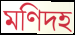
মণিদহ